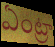
ఏంట్రా